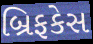
બ્રિફકેસ